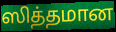
ஸித்தமான